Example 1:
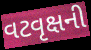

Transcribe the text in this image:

વટવૃક્ષની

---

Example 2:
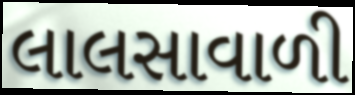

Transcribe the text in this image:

લાલસાવાળી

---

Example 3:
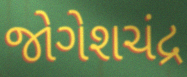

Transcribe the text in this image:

જોગેશચંદ્ર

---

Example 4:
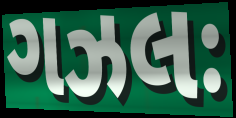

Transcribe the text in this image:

ગઝલઃ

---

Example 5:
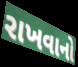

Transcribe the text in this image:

રાખવાનો